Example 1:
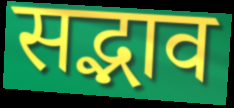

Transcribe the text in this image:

सद्भाव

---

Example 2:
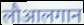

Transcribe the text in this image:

लौआलगान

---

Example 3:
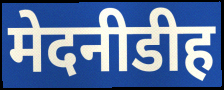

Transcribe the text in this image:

मेदनीडीह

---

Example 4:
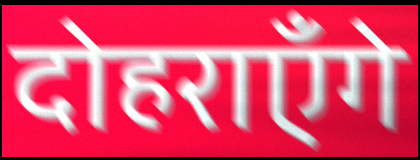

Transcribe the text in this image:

दोहराएँगे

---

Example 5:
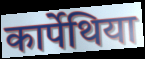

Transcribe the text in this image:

कार्पेथिया